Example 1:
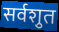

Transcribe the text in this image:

सर्वश्रुत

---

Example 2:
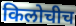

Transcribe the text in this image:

किलोचीच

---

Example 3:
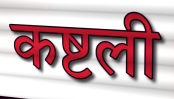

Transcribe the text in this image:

कष्टली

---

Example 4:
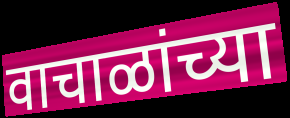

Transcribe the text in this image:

वाचाळांच्या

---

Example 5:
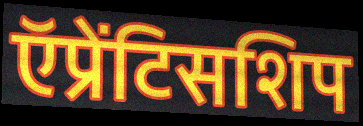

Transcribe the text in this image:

ऍप्रेंटिसशिप